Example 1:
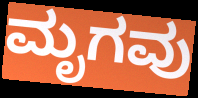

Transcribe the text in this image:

ಮೃಗವು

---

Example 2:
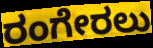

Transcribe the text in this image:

ರಂಗೇರಲು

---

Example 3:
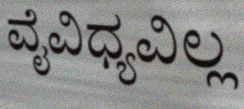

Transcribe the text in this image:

ವೈವಿಧ್ಯವಿಲ್ಲ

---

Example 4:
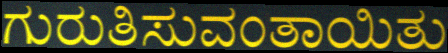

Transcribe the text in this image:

ಗುರುತಿಸುವಂತಾಯಿತು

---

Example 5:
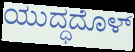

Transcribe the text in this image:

ಯುದ್ಧದೊಳ್